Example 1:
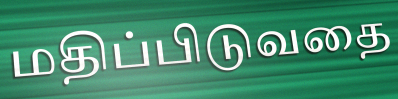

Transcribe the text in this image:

மதிப்பிடுவதை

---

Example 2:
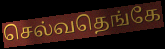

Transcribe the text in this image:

செல்வதெங்கே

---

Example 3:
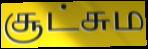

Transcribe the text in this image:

சூட்சும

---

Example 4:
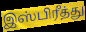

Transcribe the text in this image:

இஸ்பிரீத்து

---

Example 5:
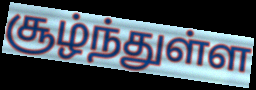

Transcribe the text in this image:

சூழ்ந்துள்ள